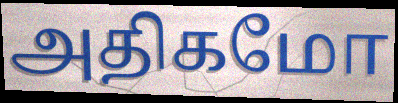
அதிகமோ